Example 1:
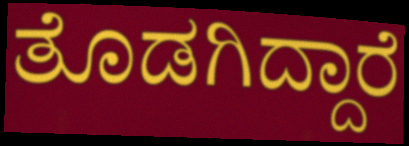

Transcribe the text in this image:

ತೊಡಗಿದ್ದಾರೆ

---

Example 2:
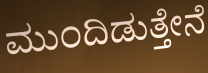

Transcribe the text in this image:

ಮುಂದಿಡುತ್ತೇನೆ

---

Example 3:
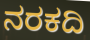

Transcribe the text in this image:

ನರಕದಿ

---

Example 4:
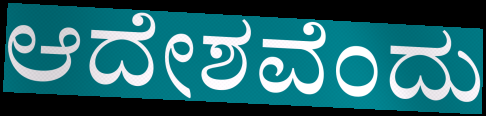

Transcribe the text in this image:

ಆದೇಶವೆಂದು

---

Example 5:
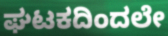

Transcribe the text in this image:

ಘಟಕದಿಂದಲೇ